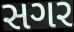
સગર